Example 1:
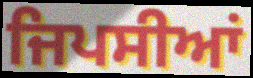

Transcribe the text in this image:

ਜਿਪਸੀਆਂ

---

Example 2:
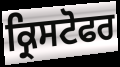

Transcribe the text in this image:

ਕ੍ਰਿਸਟੋਫਰ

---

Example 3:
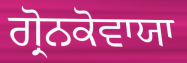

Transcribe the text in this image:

ਗ੍ਰੋਨਕੋਵਾਯਾ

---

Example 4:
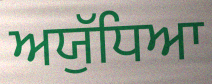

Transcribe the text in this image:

ਅਯੁੱਧਿਆ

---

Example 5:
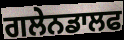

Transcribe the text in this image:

ਗਲੇਨਡਾਲਫ